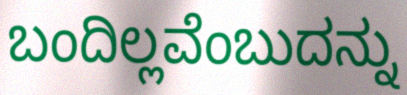
ಬಂದಿಲ್ಲವೆಂಬುದನ್ನು